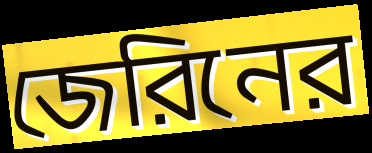
জেরিনের